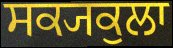
ਸਕ੍ਯਕੁਲਾ